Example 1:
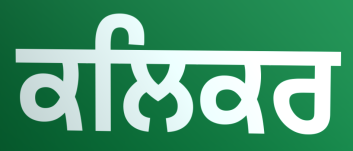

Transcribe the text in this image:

ਕਲਿਕਰ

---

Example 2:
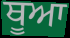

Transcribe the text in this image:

ਥੂਆ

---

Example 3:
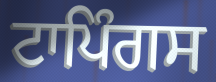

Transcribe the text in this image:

ਟਾਪਿੰਗਸ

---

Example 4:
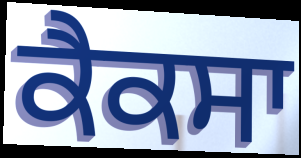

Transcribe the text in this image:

ਕੈਕਸਾ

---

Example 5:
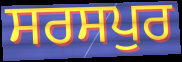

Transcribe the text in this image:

ਸਰਸਪੁਰ